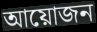
আয়োজন